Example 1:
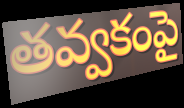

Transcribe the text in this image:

తవ్వకంపై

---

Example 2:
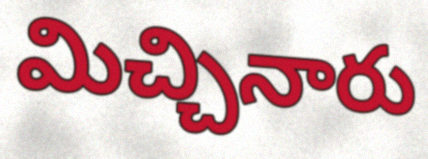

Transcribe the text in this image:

మిచ్చినారు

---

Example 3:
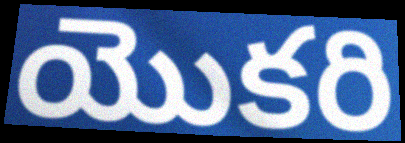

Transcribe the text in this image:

యొకరి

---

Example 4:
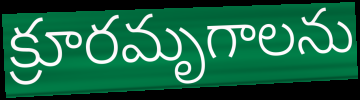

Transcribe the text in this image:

క్రూరమృగాలను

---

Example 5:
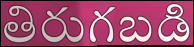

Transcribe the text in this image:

తిరుగబడి